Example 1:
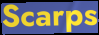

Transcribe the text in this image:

Scarps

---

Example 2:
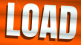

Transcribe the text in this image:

LOAD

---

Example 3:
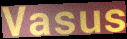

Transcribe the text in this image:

Vasus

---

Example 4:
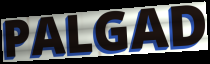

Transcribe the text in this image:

PALGAD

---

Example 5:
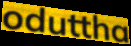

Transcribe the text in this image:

oduttha